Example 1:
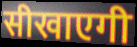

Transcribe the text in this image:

सीखाएगी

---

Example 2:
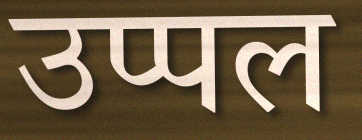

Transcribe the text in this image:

उप्पल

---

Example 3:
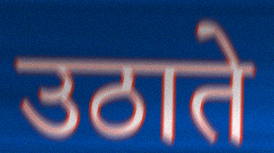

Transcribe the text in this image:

उठाते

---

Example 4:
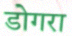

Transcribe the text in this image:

डोगरा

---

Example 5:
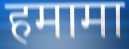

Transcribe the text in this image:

हमामा